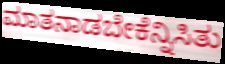
ಮಾತನಾಡಬೇಕೆನ್ನಿಸಿತು